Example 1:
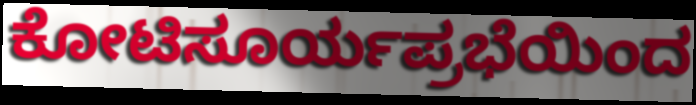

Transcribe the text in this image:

ಕೋಟಿಸೂರ್ಯಪ್ರಭೆಯಿಂದ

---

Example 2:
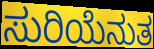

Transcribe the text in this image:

ಸುರಿಯೆನುತ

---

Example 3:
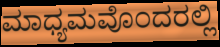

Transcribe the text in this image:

ಮಾಧ್ಯಮವೊಂದರಲ್ಲಿ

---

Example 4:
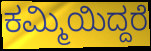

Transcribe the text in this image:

ಕಮ್ಮಿಯಿದ್ದರೆ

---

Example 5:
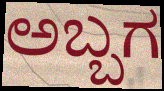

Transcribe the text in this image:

ಅಬ್ಬಗ